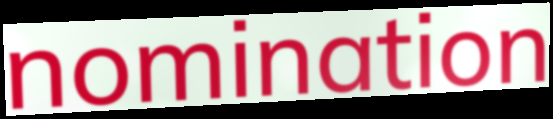
nomination